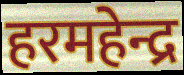
हरमहेन्द्र